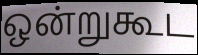
ஒன்றுகூட